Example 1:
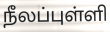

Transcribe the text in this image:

நீலப்புள்ளி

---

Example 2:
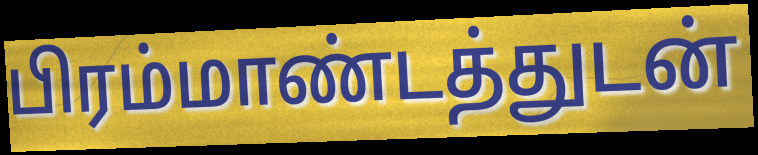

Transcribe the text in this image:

பிரம்மாண்டத்துடன்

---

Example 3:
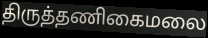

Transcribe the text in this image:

திருத்தணிகைமலை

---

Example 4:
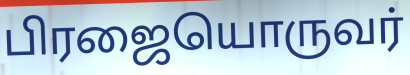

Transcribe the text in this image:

பிரஜையொருவர்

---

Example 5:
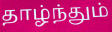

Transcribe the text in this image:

தாழ்ந்தும்